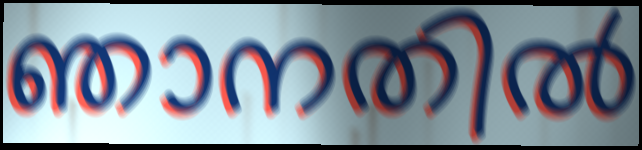
ഞാനതിൽ